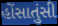
હોંસાતુંસી